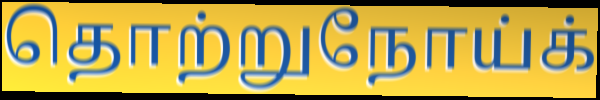
தொற்றுநோய்க்